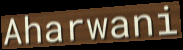
Aharwani